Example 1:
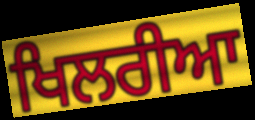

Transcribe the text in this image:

ਖਿਲਰੀਆ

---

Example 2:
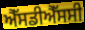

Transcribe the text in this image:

ਐੱਸਡੀਐੱਸਸੀ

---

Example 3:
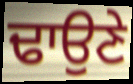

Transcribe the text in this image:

ਢਾਉਣੇ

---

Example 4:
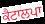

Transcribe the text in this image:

ਕੈਟਾਲਪਾ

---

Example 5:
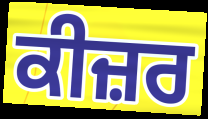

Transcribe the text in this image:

ਕੀਜ਼ਰ